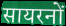
सायरनों